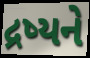
દ્રષ્યને